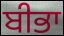
ਬੀਭਾ